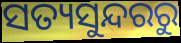
ସତ୍ୟସୁନ୍ଦରରୁ